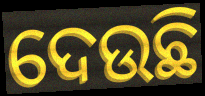
ଦେଉଛି